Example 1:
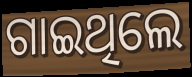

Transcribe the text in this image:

ଗାଇଥିଲେ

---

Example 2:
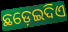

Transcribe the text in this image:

ଛଡ଼େଇଦିଏ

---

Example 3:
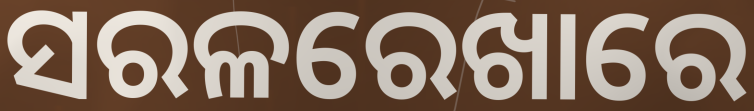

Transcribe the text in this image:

ସରଳରେଖାରେ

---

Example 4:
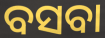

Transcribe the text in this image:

ବସବା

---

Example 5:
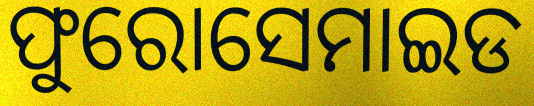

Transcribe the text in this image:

ଫୁରୋସେମାଇଡ